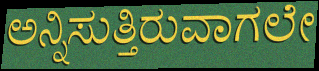
ಅನ್ನಿಸುತ್ತಿರುವಾಗಲೇ